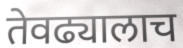
तेवढ्यालाच